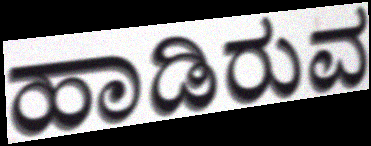
ಹಾಡಿರುವ